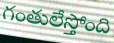
గంతులేస్తోంది